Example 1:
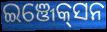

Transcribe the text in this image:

ଇଞ୍ଜେକ୍‌ସନ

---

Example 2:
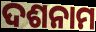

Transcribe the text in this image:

ଦଶନାମ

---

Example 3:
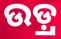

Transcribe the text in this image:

ଉଡ଼୍ର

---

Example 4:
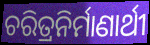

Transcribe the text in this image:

ଚରିତ୍ରନିର୍ମାଣାର୍ଥୀ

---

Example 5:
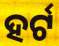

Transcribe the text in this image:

ହର୍ଟ